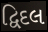
દ્વિદલ